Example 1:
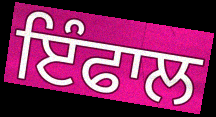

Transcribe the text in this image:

ਇੰਫਾਲ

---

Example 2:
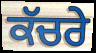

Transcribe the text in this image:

ਕੱਚਰੇ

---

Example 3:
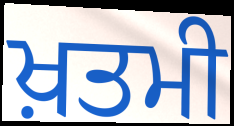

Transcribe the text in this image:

ਖ਼ਤਮੀ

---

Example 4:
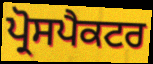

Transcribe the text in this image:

ਪ੍ਰੋਸਪੈਕਟਰ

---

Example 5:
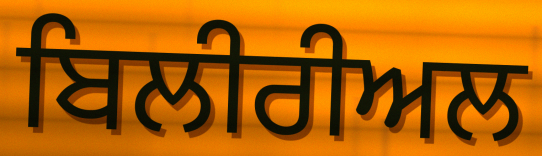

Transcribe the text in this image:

ਬਿਲੀਰੀਅਲ